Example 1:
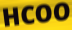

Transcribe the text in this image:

HCOO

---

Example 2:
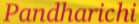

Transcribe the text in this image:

Pandharichi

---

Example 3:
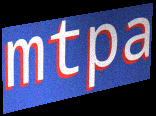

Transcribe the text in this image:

mtpa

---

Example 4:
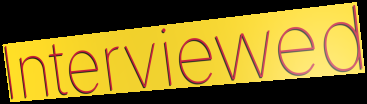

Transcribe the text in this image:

Interviewed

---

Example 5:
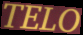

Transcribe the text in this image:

TELO